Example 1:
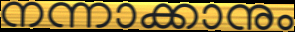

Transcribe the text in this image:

നന്നാക്കാനും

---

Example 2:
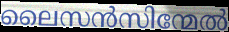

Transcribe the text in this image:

ലൈസൻസിന്മേൽ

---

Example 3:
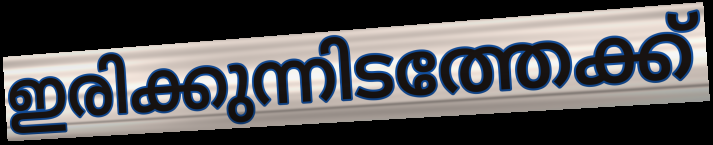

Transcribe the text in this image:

ഇരിക്കുന്നിടത്തേക്ക്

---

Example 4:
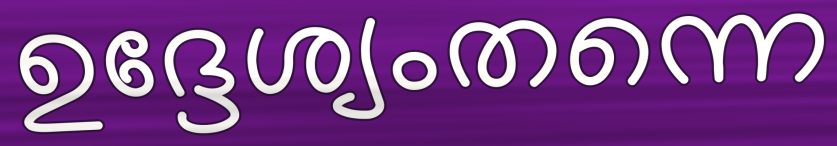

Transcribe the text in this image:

ഉദ്ദേശ്യംതന്നെ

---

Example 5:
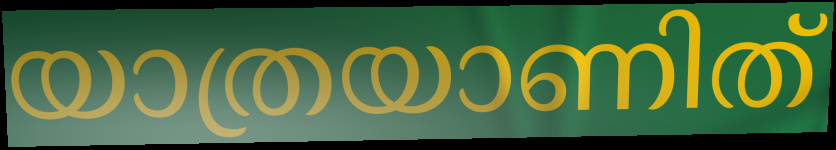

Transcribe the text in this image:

യാത്രയാണിത്